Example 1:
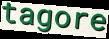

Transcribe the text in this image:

tagore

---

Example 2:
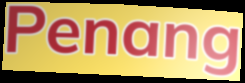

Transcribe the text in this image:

Penang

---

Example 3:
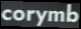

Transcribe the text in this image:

corymb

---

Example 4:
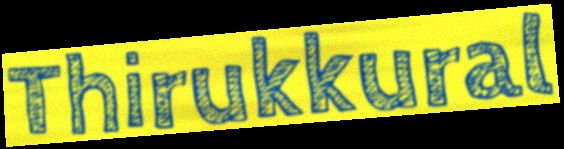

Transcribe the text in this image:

Thirukkural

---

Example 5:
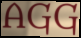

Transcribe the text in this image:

AGG